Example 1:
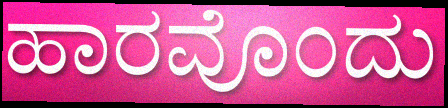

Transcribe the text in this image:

ಹಾರವೊಂದು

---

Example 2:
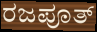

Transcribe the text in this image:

ರಜಪೂತ್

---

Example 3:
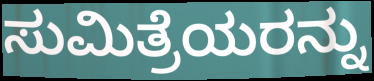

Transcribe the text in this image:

ಸುಮಿತ್ರೆಯರನ್ನು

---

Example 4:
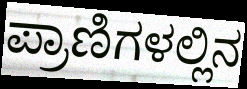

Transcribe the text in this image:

ಪ್ರಾಣಿಗಳಲ್ಲಿನ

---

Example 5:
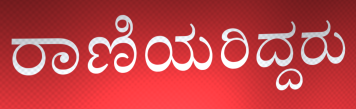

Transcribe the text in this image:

ರಾಣಿಯರಿದ್ದರು